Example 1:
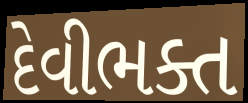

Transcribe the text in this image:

દેવીભક્ત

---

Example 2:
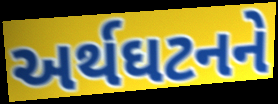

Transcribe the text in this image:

અર્થઘટનને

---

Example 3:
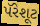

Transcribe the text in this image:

પૅરેશૂટ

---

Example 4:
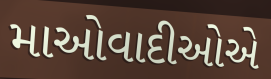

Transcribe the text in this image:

માઓવાદીઓએ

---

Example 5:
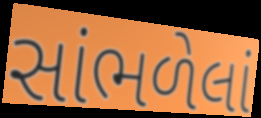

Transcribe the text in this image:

સાંભળેલાં